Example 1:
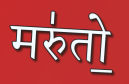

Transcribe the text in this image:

मरु॑तो॒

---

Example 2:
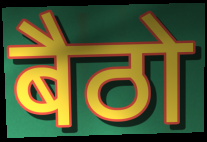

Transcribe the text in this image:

बैठो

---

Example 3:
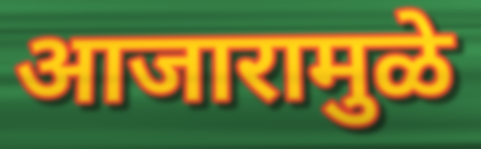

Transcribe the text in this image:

आजारामुळे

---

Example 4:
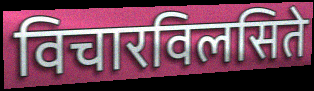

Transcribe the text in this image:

विचारविलसिते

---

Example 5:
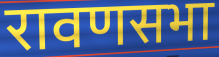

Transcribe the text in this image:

रावणसभा